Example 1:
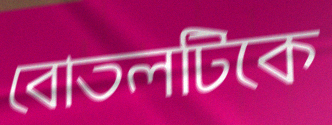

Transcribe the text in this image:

বোতলটিকে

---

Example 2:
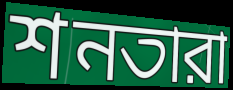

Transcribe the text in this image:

শনতারা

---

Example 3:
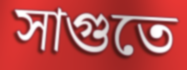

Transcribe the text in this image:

সাগুতে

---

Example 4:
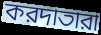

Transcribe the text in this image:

করদাতারা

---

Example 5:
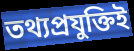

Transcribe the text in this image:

তথ্যপ্রযুক্তিই